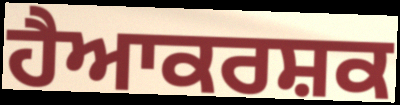
ਹੈਆਕਰਸ਼ਕ